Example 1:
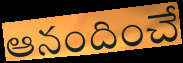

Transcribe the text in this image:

ఆనందించే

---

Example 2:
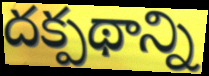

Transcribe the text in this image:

దక్పథాన్ని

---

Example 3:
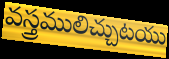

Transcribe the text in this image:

వస్త్రములిచ్చుటయు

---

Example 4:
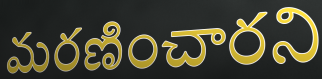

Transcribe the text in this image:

మరణించారని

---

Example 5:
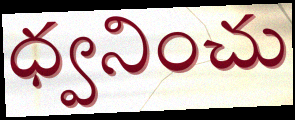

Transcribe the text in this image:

ధ్వనించు